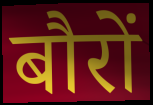
बौरों